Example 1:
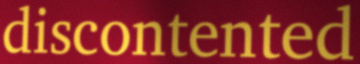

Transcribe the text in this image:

discontented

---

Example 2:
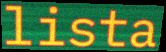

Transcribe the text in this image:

lista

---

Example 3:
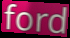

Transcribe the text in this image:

ford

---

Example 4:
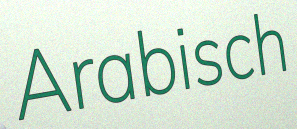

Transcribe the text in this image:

Arabisch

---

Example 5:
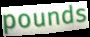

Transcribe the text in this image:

pounds